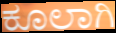
ಕೂಲಾಗಿ